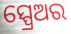
ସ୍ପ୍ରେଅର